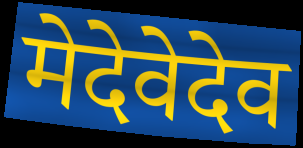
मेदेवेदेव